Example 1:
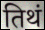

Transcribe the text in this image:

तिथं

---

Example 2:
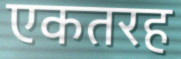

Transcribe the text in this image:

एकतरह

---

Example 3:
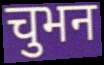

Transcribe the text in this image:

चुभन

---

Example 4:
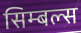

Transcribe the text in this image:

सिम्बल्स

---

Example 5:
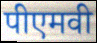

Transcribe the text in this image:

पीएमवी